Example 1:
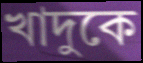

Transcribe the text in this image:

খাদুকে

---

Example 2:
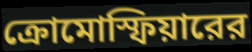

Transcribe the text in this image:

ক্রোমোস্ফিয়ারের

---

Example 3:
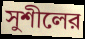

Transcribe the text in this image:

সুশীলের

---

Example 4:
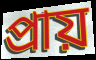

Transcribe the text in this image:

প্রায়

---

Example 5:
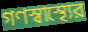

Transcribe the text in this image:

গণস্বাস্থ্যের